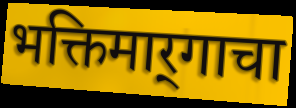
भक्तिमार्गाचा